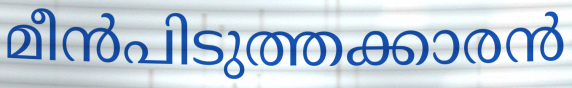
മീൻപിടുത്തക്കാരൻ